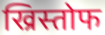
ख्रिस्तोफ